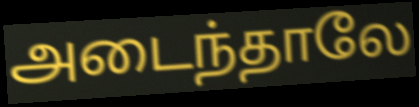
அடைந்தாலே